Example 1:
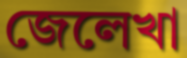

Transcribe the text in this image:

জেলেখা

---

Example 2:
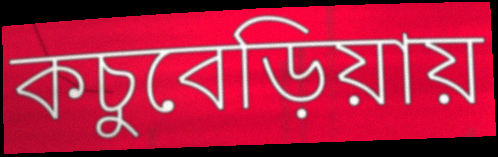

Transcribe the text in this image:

কচুবেড়িয়ায়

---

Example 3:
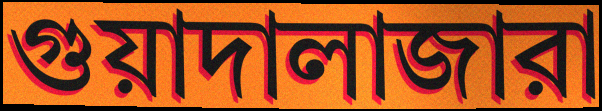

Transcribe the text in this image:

গুয়াদালাজারা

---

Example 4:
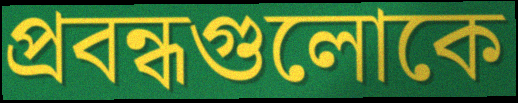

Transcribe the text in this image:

প্রবন্ধগুলোকে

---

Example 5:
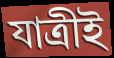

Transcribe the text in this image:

যাত্রীই